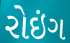
રોઇંગ